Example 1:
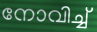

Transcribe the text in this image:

നോവിച്ച്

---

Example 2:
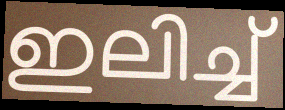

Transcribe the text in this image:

ഇലിച്ച്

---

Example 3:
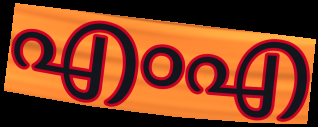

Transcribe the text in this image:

എംഎ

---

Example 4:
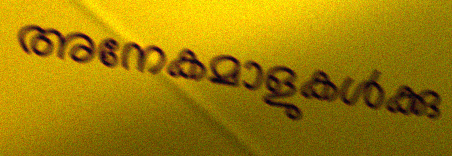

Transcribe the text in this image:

അനേകമാളുകൾക്കു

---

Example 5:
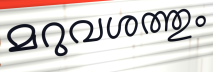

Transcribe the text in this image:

മറുവശത്തും